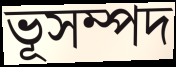
ভূসম্পদ